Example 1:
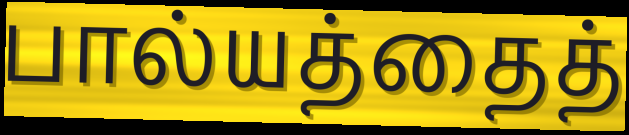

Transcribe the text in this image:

பால்யத்தைத்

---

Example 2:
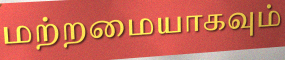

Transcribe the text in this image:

மற்றமையாகவும்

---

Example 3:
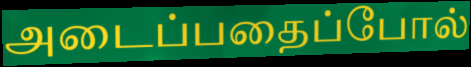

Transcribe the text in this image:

அடைப்பதைப்போல்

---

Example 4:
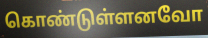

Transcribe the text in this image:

கொண்டுள்ளனவோ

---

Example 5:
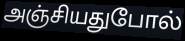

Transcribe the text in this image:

அஞ்சியதுபோல்